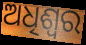
ଅଧିଶ୍ବର